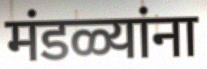
मंडळ्यांना